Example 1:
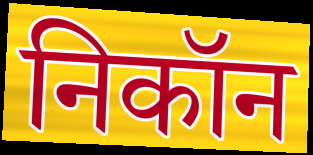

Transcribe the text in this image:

निकॉन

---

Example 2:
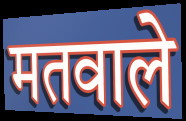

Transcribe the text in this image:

मतवाले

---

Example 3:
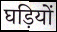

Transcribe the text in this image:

घड़ियों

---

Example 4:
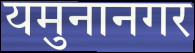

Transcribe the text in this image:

यमुनानगर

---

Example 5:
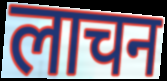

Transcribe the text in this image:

लाचन